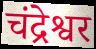
चंद्रेश्वर